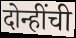
दोन्हींची